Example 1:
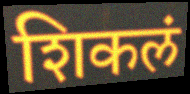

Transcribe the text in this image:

शिकलं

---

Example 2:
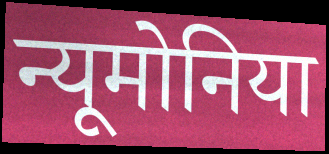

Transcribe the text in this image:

न्यूमोनिया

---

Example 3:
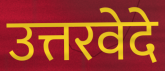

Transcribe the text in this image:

उत्तरवेदे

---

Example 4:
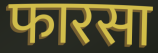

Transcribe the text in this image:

फारसा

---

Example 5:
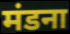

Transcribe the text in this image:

मंडना